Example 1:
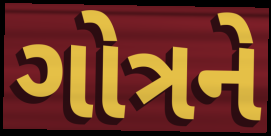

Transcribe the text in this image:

ગોત્રને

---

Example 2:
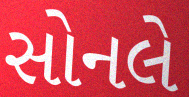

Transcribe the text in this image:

સોનલે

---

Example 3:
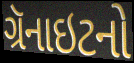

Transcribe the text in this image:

ગ્રૅનાઇટનો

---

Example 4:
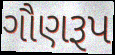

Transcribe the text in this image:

ગૌણરૂપ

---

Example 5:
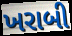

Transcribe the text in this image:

ખરાબી